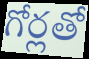
గోర్లతో